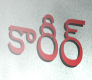
కారీర్